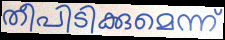
തീപിടിക്കുമെന്ന്